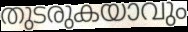
തുടരുകയാവും